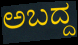
ಅಬದ್ದ